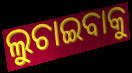
ଲୁଚାଇବାକୁ